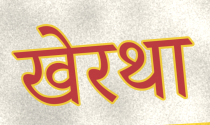
खेरथा